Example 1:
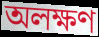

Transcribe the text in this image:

অলক্ষণ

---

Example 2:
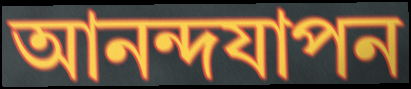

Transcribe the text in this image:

আনন্দযাপন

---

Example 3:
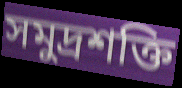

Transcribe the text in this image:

সমুদ্রশক্তি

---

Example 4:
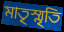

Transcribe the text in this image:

মাতৃস্মৃতি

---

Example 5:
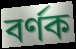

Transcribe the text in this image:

বর্ণক